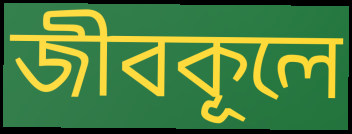
জীবকূলে